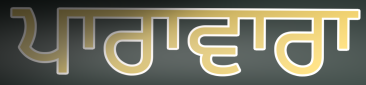
ਪਾਰਾਵਾਰਾ